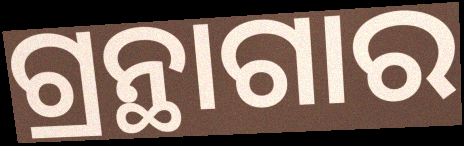
ଗ୍ରନ୍ଥାଗାର